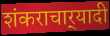
शंकराचार्यादी